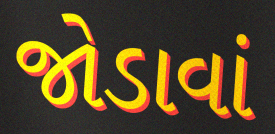
જોડાવાં